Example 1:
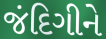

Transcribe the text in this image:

જંદિગીને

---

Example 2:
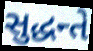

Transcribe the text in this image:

સુદ્ધન્તે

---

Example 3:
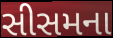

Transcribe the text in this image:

સીસમના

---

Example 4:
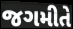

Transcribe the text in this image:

જગમીતે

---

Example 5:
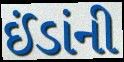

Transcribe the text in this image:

ઈંડાંની